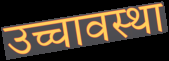
उच्चावस्था